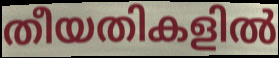
തീയതികളിൽ